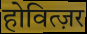
होवित्ज़र